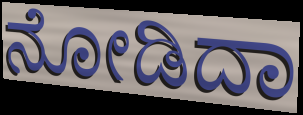
ನೋಡಿದಾ